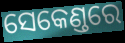
ସେକେଣ୍ଡରେ